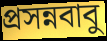
প্রসন্নবাবু